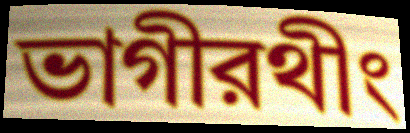
ভাগীরথীং